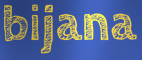
bijana